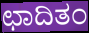
ಛಾದಿತಂ